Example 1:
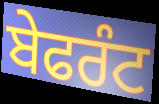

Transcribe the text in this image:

ਬੇਫਰੰਟ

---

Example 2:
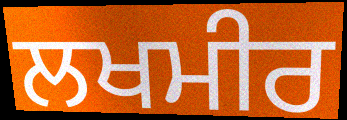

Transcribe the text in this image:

ਲਖਮੀਰ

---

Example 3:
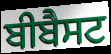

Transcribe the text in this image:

ਬੀਬੈਸਟ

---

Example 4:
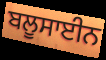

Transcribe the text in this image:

ਬਲੂਸਾਈਨ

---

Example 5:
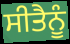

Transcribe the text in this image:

ਸੀਤੈਨੂੰ